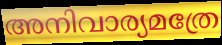
അനിവാര്യമത്രേ